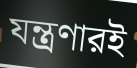
যন্ত্রণারই